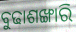
ବୁଢାଶଙ୍ଖାରି